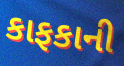
કાફકાની